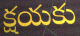
క్షయకు